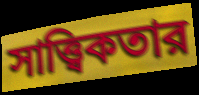
সাত্ত্বিকতার